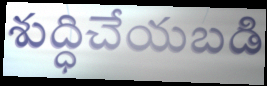
శుద్ధిచేయబడి